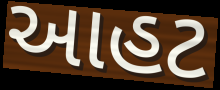
આહટ